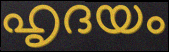
ഹൃദയം